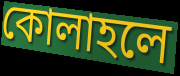
কোলাহলে